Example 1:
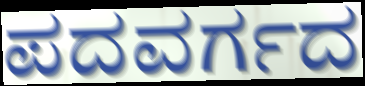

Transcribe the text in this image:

ಪದವರ್ಗದ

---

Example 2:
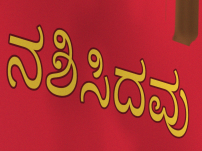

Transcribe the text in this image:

ನಶಿಸಿದವು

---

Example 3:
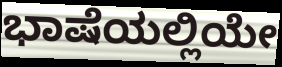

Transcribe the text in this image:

ಭಾಷೆಯಲ್ಲಿಯೇ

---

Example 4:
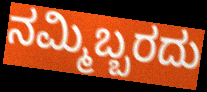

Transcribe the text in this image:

ನಮ್ಮಿಬ್ಬರದು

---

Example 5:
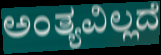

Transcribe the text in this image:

ಅಂತ್ಯವಿಲ್ಲದೆ